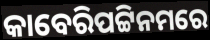
କାବେରିପଟ୍ଟିନମରେ